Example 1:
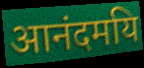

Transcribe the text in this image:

आनंदमयि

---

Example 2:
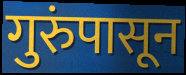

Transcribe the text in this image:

गुरुंपासून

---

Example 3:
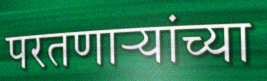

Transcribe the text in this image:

परतणाऱ्यांच्या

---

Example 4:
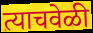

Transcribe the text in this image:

त्याचवेळी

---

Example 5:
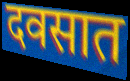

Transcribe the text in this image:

दवसात